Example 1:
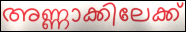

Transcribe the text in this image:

അണ്ണാക്കിലേക്ക്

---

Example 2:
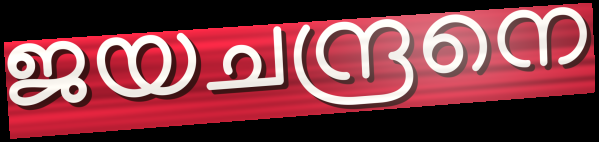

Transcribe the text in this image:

ജയചന്ദ്രനെ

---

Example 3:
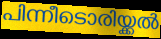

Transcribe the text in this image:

പിന്നീടൊരിയ്ക്കൽ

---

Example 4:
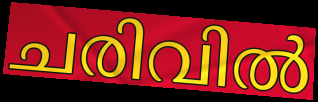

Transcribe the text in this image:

ചരിവിൽ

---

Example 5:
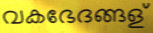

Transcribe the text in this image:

വകഭേദങ്ങള്